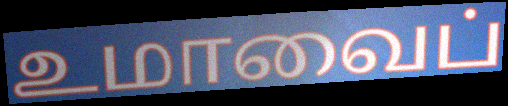
உமாவைப்